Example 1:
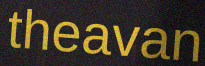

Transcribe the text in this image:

theavan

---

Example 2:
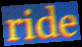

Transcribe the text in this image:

ride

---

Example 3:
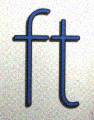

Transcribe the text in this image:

ft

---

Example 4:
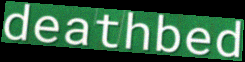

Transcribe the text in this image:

deathbed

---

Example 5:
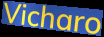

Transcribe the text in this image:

Vicharo